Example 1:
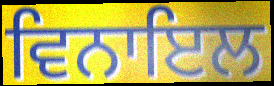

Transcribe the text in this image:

ਵਿਨਾਇਲ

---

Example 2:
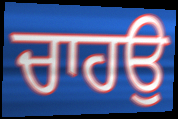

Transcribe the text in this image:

ਚਾਹਉ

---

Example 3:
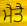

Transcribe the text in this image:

ਮੈਤੈ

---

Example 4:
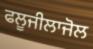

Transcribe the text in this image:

ਫਲੂਜੀਲਾਜੋਲ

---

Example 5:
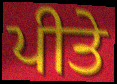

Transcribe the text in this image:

ਪੀਤੇ